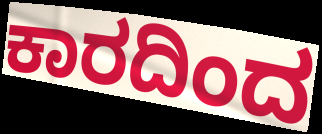
ಕಾರದಿಂದ